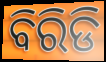
ବିରିଡି